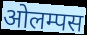
ओलम्पस